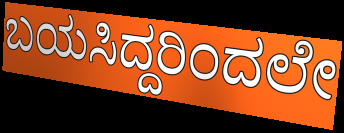
ಬಯಸಿದ್ದರಿಂದಲೇ